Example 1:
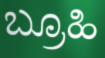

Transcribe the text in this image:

ಬ್ರೂಹಿ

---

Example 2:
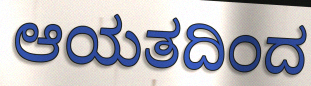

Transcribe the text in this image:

ಆಯತದಿಂದ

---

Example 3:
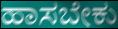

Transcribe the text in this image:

ಹಾಸಬೇಕು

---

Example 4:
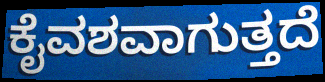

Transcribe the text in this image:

ಕೈವಶವಾಗುತ್ತದೆ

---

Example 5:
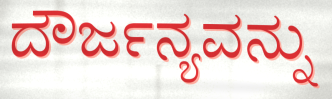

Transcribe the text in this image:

ದೌರ್ಜನ್ಯವನ್ನು